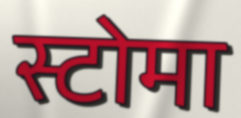
स्टोमा